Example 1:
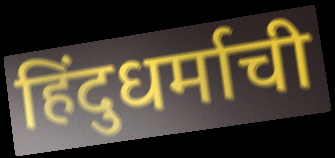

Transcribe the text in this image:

हिंदुधर्माची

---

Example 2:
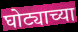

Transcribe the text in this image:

घोट्याच्या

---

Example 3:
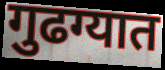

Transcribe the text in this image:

गुढग्यात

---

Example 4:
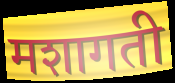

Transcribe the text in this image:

मशागती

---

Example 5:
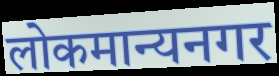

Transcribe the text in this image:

लोकमान्यनगर